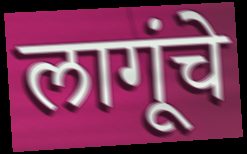
लागूंचे